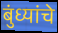
बुंध्यांचे